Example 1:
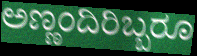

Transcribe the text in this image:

ಅಣ್ಣಂದಿರಿಬ್ಬರೂ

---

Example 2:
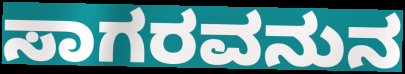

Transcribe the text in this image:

ಸಾಗರವನುನ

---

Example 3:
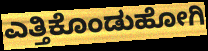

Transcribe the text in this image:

ಎತ್ತಿಕೊಂಡುಹೋಗಿ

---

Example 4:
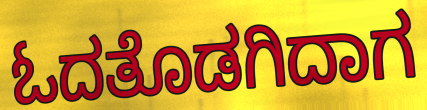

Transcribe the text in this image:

ಓದತೊಡಗಿದಾಗ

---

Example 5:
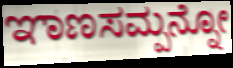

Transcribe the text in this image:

ಞಾಣಸಮ್ಪನ್ನೋ